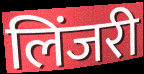
लिंजरी